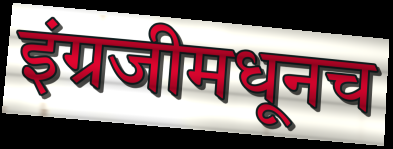
इंग्रजीमधूनच